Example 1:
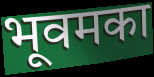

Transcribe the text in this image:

भूवमका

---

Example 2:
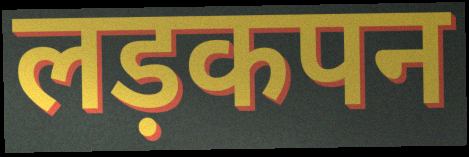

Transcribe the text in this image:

लड़कपन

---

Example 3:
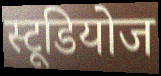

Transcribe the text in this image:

स्टूडियोज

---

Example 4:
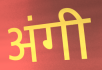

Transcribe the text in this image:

अंगी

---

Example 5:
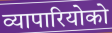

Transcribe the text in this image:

व्यापारियोको